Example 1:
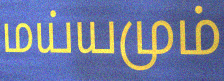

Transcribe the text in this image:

மய்யமும்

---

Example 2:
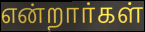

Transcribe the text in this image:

என்றார்கள்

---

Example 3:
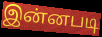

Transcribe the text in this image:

இன்னபடி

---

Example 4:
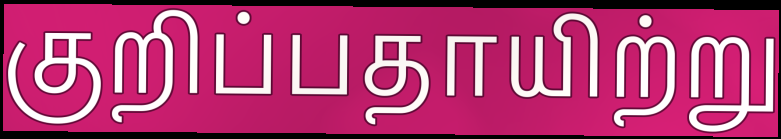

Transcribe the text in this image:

குறிப்பதாயிற்று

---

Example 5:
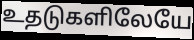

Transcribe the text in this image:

உதடுகளிலேயே